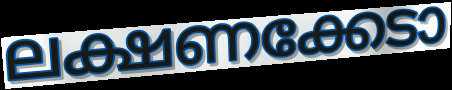
ലക്ഷണക്കേടാ